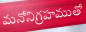
మనోనిగ్రహముతో